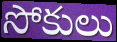
సోకులు